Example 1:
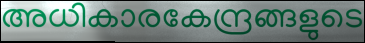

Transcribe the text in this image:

അധികാരകേന്ദ്രങ്ങളുടെ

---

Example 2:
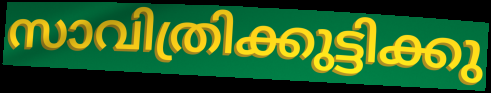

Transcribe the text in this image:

സാവിത്രിക്കുട്ടിക്കു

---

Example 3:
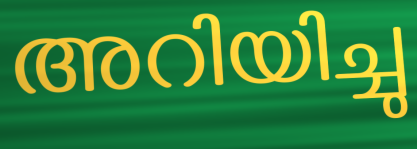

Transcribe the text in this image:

അറിയിച്ചു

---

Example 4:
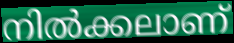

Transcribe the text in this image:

നിൽക്കലാണ്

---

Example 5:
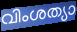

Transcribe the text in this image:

വിംശത്യാ